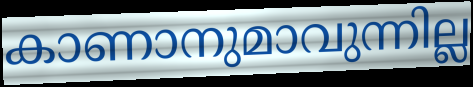
കാണാനുമാവുന്നില്ല